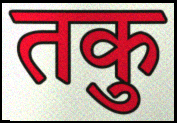
तकु